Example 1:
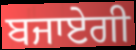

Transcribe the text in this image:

ਬਜਾਏਗੀ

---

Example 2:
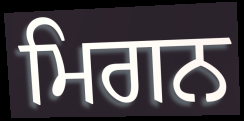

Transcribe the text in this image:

ਮਿਗਨ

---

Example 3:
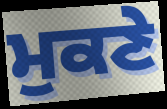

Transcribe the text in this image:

ਮੁਕਣੇ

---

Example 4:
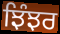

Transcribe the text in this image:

ਝਿੰਝਰ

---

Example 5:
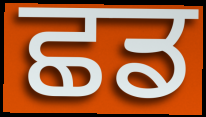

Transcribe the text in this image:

ਛਡ